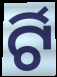
ର୍ଟି